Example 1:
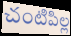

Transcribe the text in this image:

చంటిపిల్ల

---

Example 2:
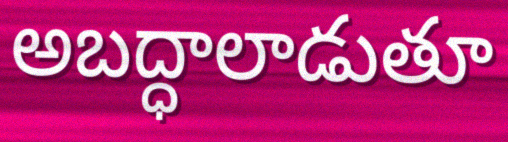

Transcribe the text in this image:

అబద్ధాలాడుతూ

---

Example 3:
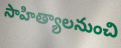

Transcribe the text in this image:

సాహిత్యాలనుంచి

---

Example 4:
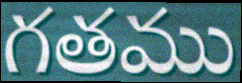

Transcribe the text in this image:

గతము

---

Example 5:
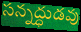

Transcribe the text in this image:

సన్నద్ధుడవు